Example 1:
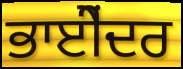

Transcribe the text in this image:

ਭਾਈੇਂਦਰ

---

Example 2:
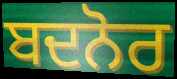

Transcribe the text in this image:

ਬਦਨੋਰ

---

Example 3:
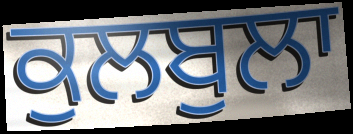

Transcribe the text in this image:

ਕੁਲਬੁਲਾ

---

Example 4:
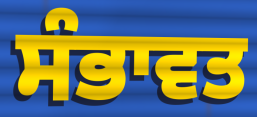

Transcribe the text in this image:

ਸੰਭਾਵਤ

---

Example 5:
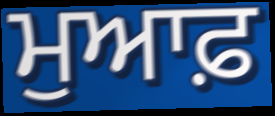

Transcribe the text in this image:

ਮੁਆਫ਼